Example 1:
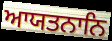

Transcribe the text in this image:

ਆਯਤਨਾਨਿ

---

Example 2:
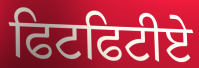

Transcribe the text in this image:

ਫਿਟਫਿਟੀਏ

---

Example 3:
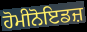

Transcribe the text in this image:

ਹੋਮੀਨੋਇਡਜ਼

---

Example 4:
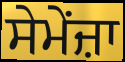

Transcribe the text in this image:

ਸੇਮੇਂਜ਼ਾ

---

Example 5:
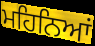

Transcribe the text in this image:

ਮਹਿਨਿਆਂ